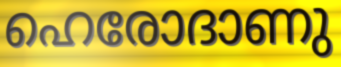
ഹെരോദാണു